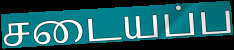
சடையப்ப